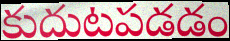
కుదుటపడడం